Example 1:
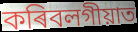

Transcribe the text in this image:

কৰিবলগীয়াত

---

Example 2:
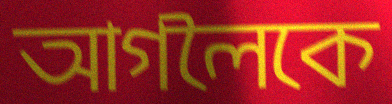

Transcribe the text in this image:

আগলৈকে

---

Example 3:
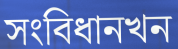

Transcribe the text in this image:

সংবিধানখন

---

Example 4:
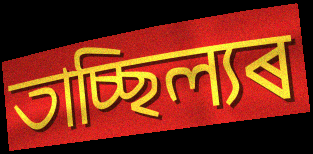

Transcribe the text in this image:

তাচ্ছিল্যৰ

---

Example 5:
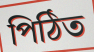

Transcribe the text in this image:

পিঠিত